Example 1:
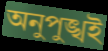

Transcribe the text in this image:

অনুপুঙ্খই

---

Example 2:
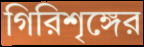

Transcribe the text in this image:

গিরিশৃঙ্গের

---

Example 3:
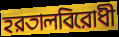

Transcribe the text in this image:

হরতালবিরোধী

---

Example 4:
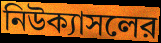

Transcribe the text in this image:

নিউক্যাসলের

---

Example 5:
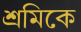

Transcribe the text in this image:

শ্রমিকে